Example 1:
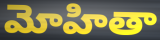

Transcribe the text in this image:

మోహితా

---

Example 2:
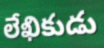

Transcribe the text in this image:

లేఖికుడు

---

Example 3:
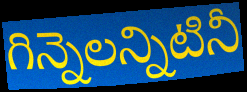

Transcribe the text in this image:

గిన్నెలన్నిటినీ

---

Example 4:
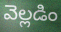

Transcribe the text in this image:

వెల్లడిం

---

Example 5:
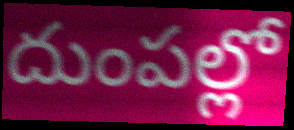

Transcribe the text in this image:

దుంపల్లో